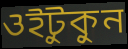
ওইটুকুন